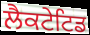
ਲੈਕਟੇਟਿਡ